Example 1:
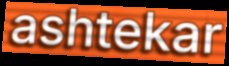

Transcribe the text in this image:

ashtekar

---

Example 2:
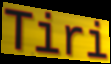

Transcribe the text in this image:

Tiri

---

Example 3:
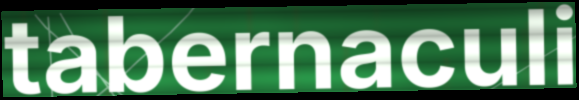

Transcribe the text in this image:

tabernaculi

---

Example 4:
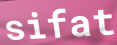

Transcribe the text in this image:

sifat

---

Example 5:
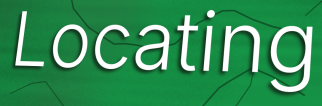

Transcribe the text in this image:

Locating